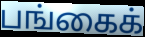
பங்கைக்